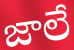
జాలే